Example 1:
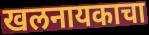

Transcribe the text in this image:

खलनायकाचा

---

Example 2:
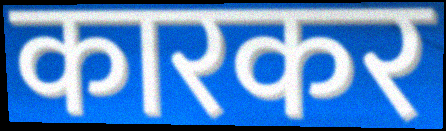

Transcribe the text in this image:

कारकर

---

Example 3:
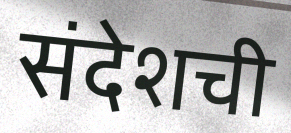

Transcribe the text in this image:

संदेशची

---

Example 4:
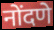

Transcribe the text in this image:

नोंदणे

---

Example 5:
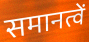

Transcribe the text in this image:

समानत्वें